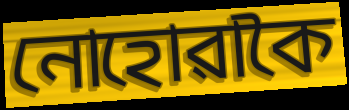
নোহোৱাকৈ